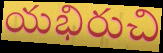
యభిరుచి